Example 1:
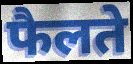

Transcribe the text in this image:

फैलते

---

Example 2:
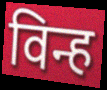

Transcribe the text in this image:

विन्ह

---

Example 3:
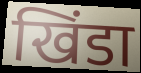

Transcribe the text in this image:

खिंडा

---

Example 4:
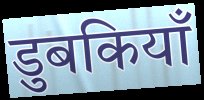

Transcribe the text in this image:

डुबकियाँ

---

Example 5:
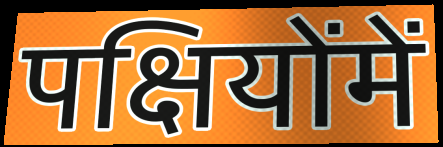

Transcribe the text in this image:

पक्षियोंमें